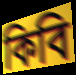
কিবি